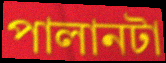
পালানটা